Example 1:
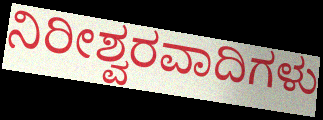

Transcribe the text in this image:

ನಿರೀಶ್ವರವಾದಿಗಳು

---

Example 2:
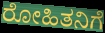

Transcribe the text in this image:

ರೋಹಿತನಿಗೆ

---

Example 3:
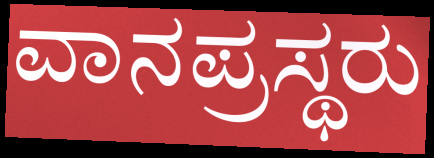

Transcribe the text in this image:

ವಾನಪ್ರಸ್ಥರು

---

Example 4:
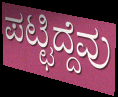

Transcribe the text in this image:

ಪಟ್ಟಿದ್ದೆವು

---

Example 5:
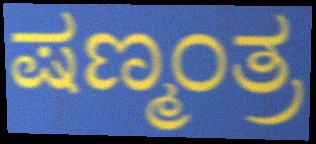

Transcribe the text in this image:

ಷಣ್ಮಂತ್ರ